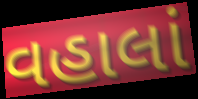
વહાલાં